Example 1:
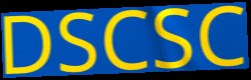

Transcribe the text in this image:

DSCSC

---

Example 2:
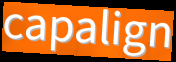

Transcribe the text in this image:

capalign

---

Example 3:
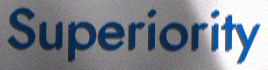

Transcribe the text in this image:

Superiority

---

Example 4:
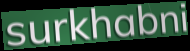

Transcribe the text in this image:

surkhabni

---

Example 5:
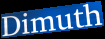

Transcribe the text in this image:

Dimuth